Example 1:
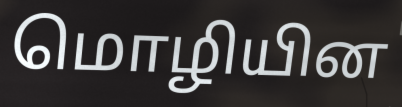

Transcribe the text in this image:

மொழியின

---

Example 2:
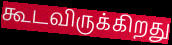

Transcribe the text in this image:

கூடவிருக்கிறது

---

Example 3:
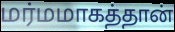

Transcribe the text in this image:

மர்மமாகத்தான்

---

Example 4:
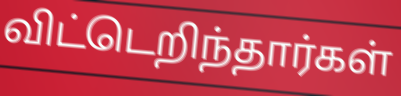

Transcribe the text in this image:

விட்டெறிந்தார்கள்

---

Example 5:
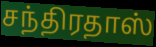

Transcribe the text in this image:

சந்திரதாஸ்